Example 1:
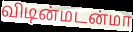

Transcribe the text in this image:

விடின்மடன்மா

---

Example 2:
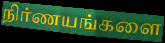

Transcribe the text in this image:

நிர்ணயங்களை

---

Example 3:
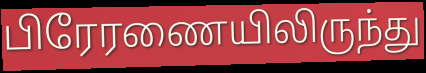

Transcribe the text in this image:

பிரேரணையிலிருந்து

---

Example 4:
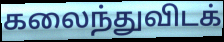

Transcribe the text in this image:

கலைந்துவிடக்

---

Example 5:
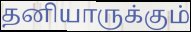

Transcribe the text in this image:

தனியாருக்கும்